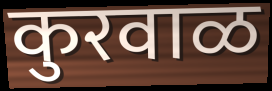
कुरवाळ